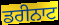
ਡਰੀਨਾਟ